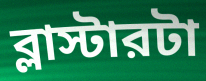
ব্লাস্টারটা